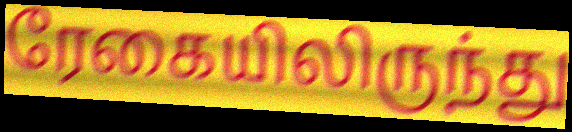
ரேகையிலிருந்து